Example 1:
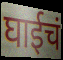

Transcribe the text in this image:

घाईचं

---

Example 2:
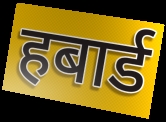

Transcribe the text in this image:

हबार्ड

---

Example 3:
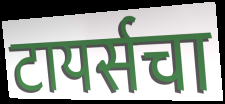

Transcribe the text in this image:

टायर्सचा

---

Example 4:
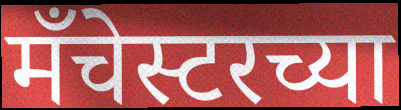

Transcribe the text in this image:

मँचेस्टरच्या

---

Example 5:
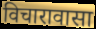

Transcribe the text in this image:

विचारावासा